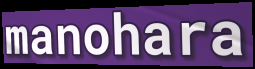
manohara